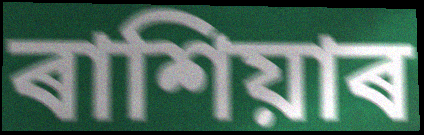
ৰাশিয়াৰ